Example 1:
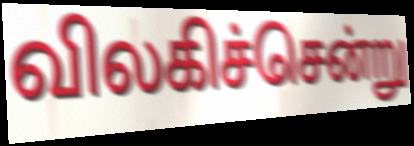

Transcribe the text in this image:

விலகிச்சென்று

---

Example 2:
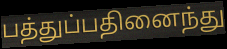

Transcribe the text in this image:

பத்துப்பதினைந்து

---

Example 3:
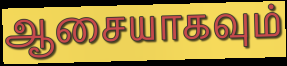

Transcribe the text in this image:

ஆசையாகவும்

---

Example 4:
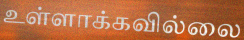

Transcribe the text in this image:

உள்ளாக்கவில்லை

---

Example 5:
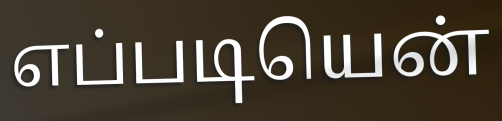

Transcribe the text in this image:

எப்படியென்